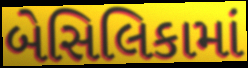
બેસિલિકામાં